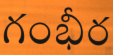
గంభీర